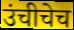
उंचीचेच